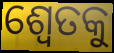
ଶ୍ଵେତକୁ